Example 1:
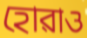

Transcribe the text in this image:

হোৱাও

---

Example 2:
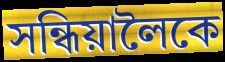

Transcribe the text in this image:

সন্ধিয়ালৈকে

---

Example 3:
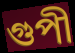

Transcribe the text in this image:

গুপী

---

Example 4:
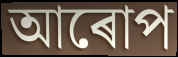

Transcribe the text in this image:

আৰোপ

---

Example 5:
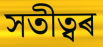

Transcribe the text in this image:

সতীত্বৰ